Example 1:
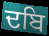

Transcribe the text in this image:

ਦਬਿ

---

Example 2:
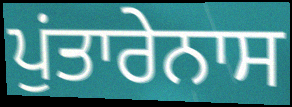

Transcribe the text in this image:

ਪੁਂਤਾਰੇਨਾਸ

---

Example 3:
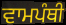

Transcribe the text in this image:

ਵਾਮਪੰਥੀ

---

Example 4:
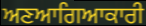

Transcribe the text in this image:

ਅਣਆਗਿਆਕਾਰੀ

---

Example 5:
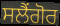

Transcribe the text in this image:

ਸਲੈਂਗੋਰ